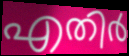
എതിർ